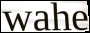
wahe